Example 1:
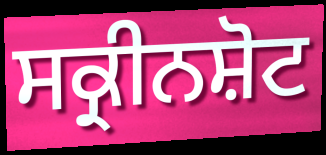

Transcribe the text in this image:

ਸਕ੍ਰੀਨਸ਼ੋਟ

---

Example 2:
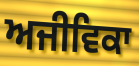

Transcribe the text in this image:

ਅਜੀਵਿਕਾ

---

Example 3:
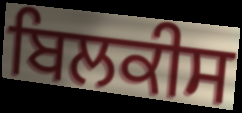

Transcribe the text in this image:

ਬਿਲਕੀਸ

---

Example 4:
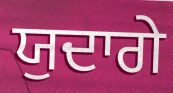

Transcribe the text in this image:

ਯੁਦਾਗੇ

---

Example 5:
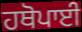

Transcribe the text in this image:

ਹਥੋਪਾਈ